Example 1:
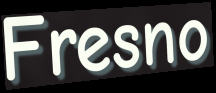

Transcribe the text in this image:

Fresno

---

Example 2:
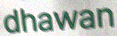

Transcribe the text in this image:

dhawan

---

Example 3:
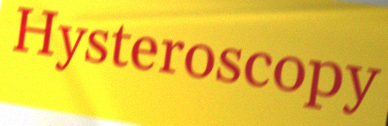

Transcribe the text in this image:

Hysteroscopy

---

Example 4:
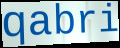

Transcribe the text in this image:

qabri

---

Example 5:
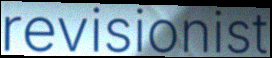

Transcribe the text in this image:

revisionist